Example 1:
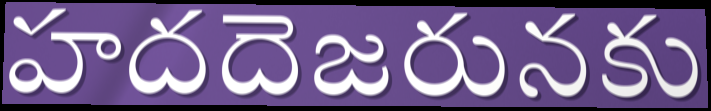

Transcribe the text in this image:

హదదెజరునకు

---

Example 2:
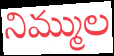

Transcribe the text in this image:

నిమ్ముల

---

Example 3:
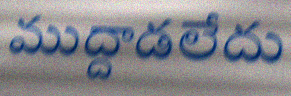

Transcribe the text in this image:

ముద్దాడలేదు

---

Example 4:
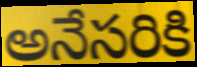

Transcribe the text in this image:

అనేసరికి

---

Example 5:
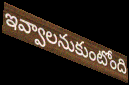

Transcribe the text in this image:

ఇవ్వాలనుకుంటోంది